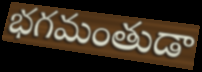
భగమంతుడా